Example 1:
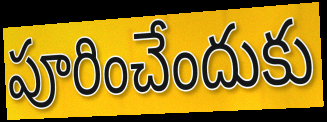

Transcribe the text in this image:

పూరించేందుకు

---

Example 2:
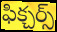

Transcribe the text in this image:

ఫిక్చర్స్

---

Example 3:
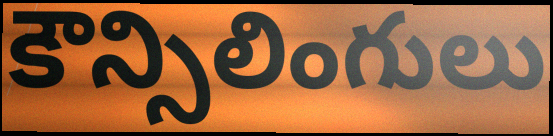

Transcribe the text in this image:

కౌన్సిలింగులు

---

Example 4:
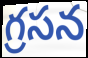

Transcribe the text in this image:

గ్రసన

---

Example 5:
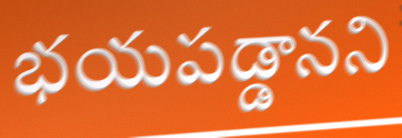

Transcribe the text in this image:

భయపడ్డానని